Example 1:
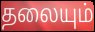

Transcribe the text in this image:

தலையும்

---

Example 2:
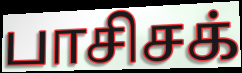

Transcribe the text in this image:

பாசிசக்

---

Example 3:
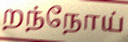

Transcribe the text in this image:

றந்நோய்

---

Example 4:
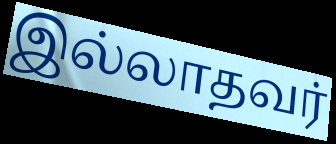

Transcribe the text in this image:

இல்லாதவர்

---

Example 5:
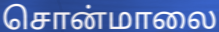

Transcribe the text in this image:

சொன்மாலை